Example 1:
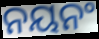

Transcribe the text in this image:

ନୟନଂ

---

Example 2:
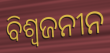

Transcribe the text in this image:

ବିଶ୍ବଜନୀନ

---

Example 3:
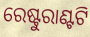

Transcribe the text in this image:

ରେଷ୍ଟୁରାଣ୍ଟଟି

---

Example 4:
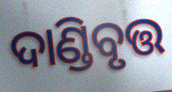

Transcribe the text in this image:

ଦାଣ୍ଡିବୃତ୍ତ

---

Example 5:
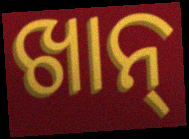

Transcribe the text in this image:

ଖାନ୍